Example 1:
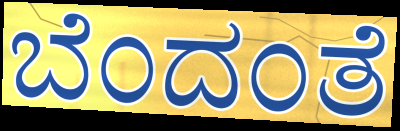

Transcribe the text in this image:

ಬೆಂದಂತೆ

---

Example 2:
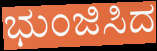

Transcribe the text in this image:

ಭುಂಜಿಸಿದ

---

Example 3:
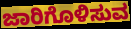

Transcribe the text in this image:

ಜಾರಿಗೊಳಿಸುವ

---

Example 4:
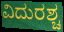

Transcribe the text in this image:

ವಿದುರಶ್ಚ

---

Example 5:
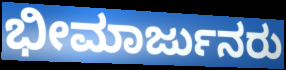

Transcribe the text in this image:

ಭೀಮಾರ್ಜುನರು